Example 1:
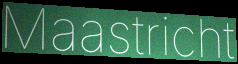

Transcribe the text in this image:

Maastricht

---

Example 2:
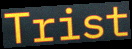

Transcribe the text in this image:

Trist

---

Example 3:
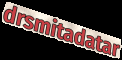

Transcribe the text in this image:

drsmitadatar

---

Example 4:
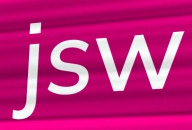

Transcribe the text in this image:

jsw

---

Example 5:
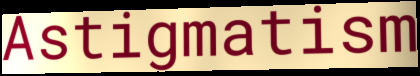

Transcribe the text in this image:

Astigmatism